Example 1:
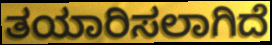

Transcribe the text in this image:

ತಯಾರಿಸಲಾಗಿದೆ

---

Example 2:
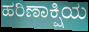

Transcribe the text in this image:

ಹರಿಣಾಕ್ಷಿಯ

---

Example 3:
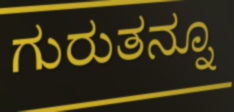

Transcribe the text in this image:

ಗುರುತನ್ನೂ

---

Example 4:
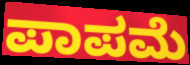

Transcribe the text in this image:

ಪಾಪಮೆ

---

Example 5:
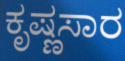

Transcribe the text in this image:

ಕೃಷ್ಣಸಾರ